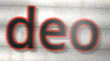
deo